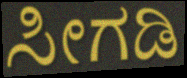
ಸೀಗಡಿ